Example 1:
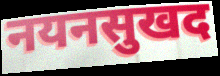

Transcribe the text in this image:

नयनसुखद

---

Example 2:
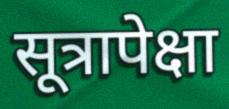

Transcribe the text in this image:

सूत्रापेक्षा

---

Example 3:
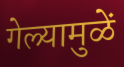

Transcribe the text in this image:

गेल्यामुळें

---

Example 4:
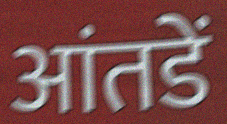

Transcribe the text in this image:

आंतडें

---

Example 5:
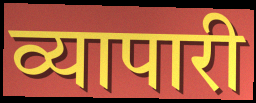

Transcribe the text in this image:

व्‍यापारी